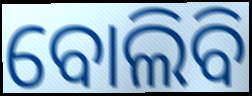
ବୋଲିବି